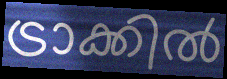
ട്രാക്കിൽ